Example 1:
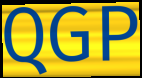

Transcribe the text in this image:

QGP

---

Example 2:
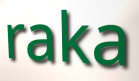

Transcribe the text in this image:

raka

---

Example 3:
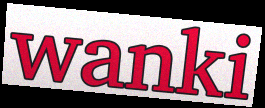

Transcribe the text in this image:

wanki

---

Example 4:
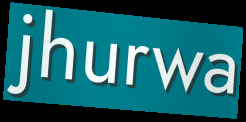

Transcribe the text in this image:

jhurwa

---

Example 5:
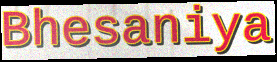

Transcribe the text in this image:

Bhesaniya